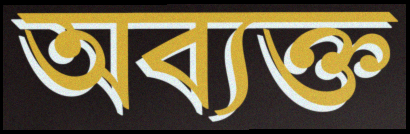
অব্যক্ত